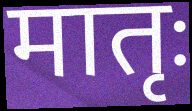
मातृः